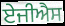
ਏਜੀਐਸ